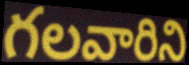
గలవారిని